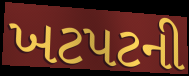
ખટપટની